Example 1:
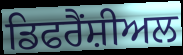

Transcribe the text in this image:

ਡਿਫਰੈਂਸ਼ੀਅਲ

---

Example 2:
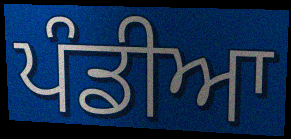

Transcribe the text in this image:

ਪੰਡੀਆ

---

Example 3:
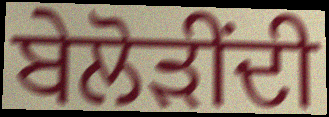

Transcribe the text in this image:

ਬੇਲੋੜੀਂਦੀ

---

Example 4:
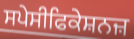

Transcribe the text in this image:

ਸਪੇਸੀਫਿਕੇਸ਼ਨਜ਼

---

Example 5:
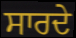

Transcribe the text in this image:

ਸਾਰਦੇ